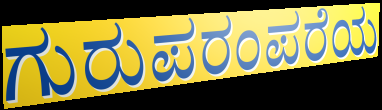
ಗುರುಪರಂಪರೆಯ